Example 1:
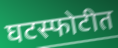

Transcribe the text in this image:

घटस्फोटीत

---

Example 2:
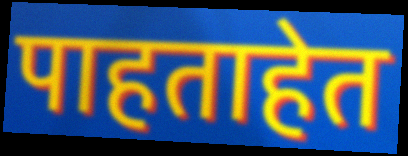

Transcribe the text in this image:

पाहताहेत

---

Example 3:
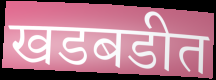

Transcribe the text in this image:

खडबडीत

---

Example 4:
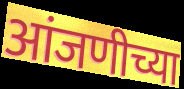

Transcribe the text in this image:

आंजणीच्या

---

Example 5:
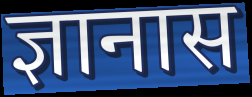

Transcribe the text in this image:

ज्ञानास